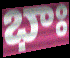
భాః